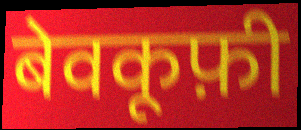
बेवकूफ़ी